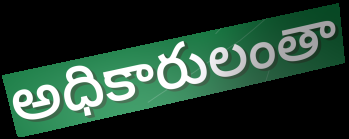
అధికారులంతా